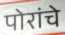
पोरांचे